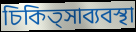
চিকিত্সাব্যবস্থা